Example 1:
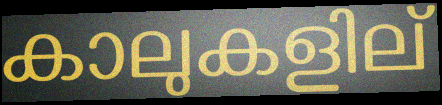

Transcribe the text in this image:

കാലുകളില്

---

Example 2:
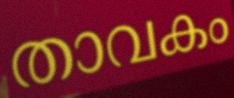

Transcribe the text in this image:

താവകം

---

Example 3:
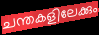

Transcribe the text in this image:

ചന്തകളിലേക്കും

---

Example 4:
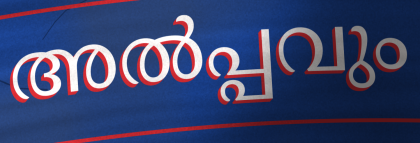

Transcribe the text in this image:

അൽപ്പവും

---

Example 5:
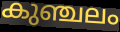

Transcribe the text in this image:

കുഞ്ചലം